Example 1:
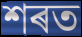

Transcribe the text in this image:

শৰত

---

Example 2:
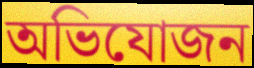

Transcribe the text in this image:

অভিযোজন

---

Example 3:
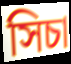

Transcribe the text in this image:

সিচা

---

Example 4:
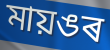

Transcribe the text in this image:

মায়ঙৰ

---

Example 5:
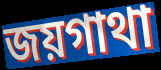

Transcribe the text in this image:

জয়গাথা